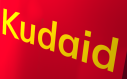
Kudaid